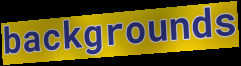
backgrounds